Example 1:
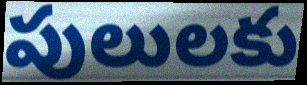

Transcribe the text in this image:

పులులకు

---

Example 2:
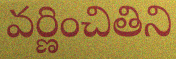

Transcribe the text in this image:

వర్ణించితిని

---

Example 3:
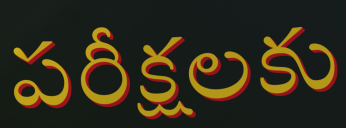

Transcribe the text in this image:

పరీక్షలకు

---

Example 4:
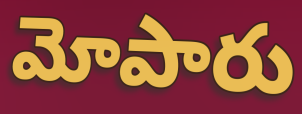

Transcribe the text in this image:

మోపారు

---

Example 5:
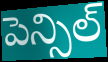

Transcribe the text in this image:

పెన్సిల్